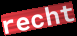
recht